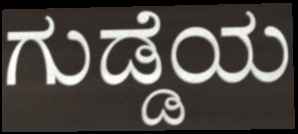
ಗುಡ್ಡೆಯ